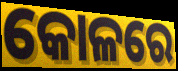
କୋଳରେ